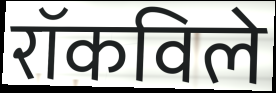
रॉकविले